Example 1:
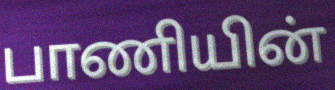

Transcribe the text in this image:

பாணியின்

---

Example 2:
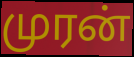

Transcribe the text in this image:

முரன்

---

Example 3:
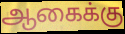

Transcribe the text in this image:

ஆகைக்கு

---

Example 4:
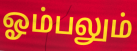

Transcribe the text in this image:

ஓம்பலும்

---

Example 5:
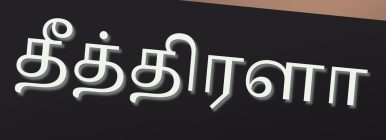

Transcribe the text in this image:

தீத்திரளா